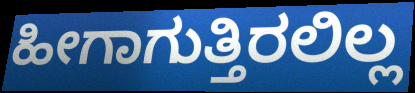
ಹೀಗಾಗುತ್ತಿರಲಿಲ್ಲ